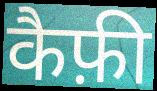
कैफ़ी